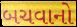
બચવાનો